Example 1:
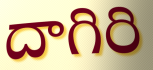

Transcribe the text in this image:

దాగిరి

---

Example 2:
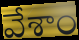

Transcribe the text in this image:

వేశాం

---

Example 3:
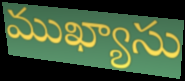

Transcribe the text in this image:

ముఖ్యాసు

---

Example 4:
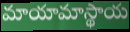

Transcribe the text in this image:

మాయామాస్థాయ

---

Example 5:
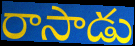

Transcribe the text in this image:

రాసాడు